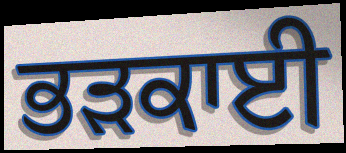
ਭੜਕਾਈ